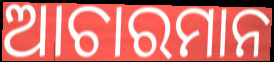
ଆଚାରମାନ